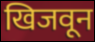
खिजवून